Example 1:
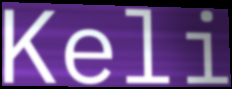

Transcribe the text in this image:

Keli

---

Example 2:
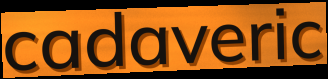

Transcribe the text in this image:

cadaveric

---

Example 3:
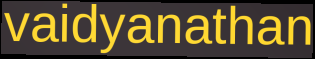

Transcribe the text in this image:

vaidyanathan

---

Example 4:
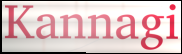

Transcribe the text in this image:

Kannagi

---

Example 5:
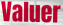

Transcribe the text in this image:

Valuer